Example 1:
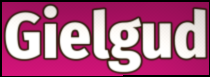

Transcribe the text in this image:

Gielgud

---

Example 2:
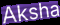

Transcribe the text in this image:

Aksha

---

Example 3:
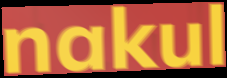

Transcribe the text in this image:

nakul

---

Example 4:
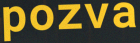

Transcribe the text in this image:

pozva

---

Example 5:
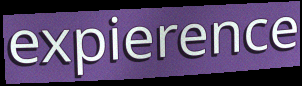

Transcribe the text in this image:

expierence